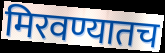
मिरवण्यातच